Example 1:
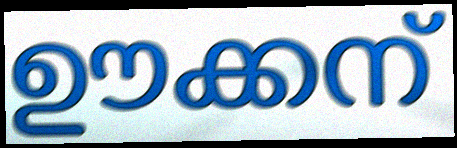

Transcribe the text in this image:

ഊക്കന്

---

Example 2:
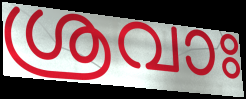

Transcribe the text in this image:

ശ്രവാഃ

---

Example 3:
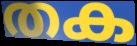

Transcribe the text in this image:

തക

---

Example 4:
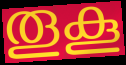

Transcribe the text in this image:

തൂകൂ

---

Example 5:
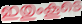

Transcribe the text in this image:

ഇതുംകൂടെ